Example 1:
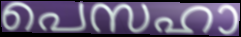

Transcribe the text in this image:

പെസഹാ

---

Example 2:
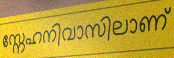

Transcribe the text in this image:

സ്നേഹനിവാസിലാണ്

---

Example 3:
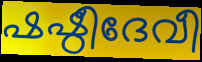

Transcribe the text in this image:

ഷഷ്ഠീദേവീ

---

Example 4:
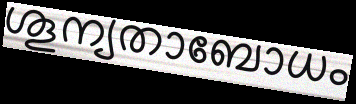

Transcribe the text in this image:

ശൂന്യതാബോധം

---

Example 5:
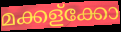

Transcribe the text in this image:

മക്കള്ക്കോ